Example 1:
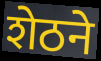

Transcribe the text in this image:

शेठने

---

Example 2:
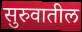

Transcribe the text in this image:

सुरुवातील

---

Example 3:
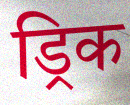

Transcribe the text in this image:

ड्रिक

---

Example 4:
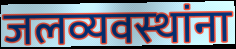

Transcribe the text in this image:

जलव्यवस्थांना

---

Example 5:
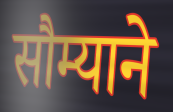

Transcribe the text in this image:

सौम्याने